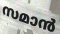
സമാൻ